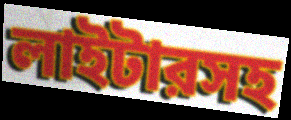
লাইটারসহ